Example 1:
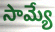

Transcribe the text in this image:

సామ్యే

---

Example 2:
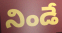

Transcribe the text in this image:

నిండే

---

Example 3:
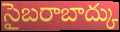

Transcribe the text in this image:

సైబరాబాద్కు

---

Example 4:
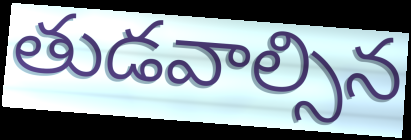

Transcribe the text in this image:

తుడవాల్సిన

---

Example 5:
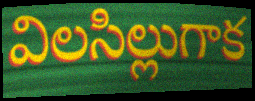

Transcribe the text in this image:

విలసిల్లుగాక